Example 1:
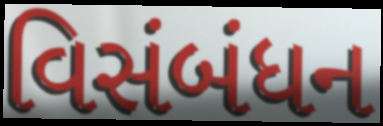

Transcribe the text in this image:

વિસંબંધન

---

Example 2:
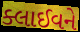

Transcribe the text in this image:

ક્લાઈવને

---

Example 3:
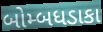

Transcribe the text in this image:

બોમ્બધડાકા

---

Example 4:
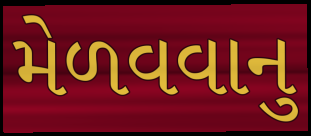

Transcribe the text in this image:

મેળવવાનુ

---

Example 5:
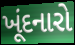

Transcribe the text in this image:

ખૂંદનારો